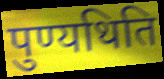
पुण्यथिति